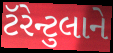
ટૅરેન્ટુલાને